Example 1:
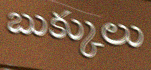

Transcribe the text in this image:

బుక్కులు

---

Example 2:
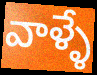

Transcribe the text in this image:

వాళ్ళే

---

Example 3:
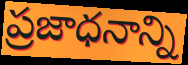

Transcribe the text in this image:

ప్రజాధనాన్ని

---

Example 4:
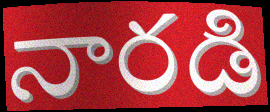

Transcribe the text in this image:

నారడి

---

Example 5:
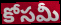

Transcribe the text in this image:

కోసమీ